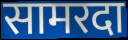
सामरदा